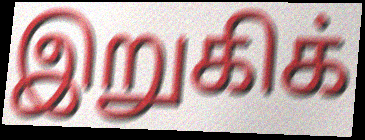
இறுகிக்